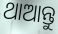
ଥାଆନ୍ତୁ